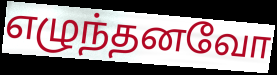
எழுந்தனவோ